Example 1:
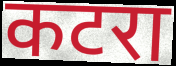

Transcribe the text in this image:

कटरा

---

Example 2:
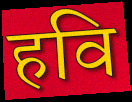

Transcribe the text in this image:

हवि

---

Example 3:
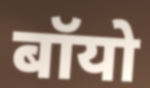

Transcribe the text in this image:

बॉयो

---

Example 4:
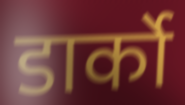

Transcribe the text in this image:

डार्को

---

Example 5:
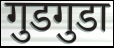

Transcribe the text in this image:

गुडगुडा